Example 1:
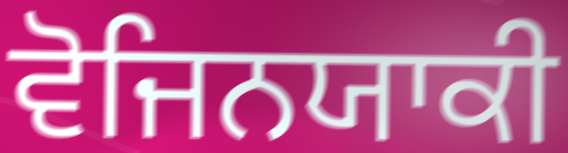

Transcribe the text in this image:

ਵੋਜਿਨਯਾਕੀ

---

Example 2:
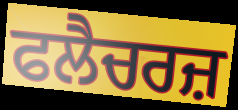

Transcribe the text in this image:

ਫਲੈਚਰਜ਼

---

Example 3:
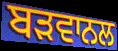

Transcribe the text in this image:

ਬੜਵਾਨਲ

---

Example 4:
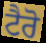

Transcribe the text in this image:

ਟੈਰੋ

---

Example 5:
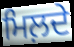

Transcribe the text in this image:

ਮਿਲ਼ਦੇ